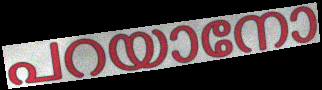
പറയാനോ